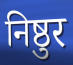
निष्ठुर